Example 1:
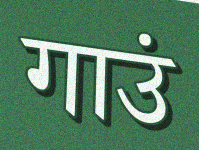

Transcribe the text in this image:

गाउं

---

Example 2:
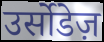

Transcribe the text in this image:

उर्सोडेज़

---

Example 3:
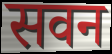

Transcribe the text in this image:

सवन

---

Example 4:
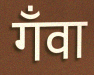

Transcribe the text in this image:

गँवा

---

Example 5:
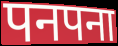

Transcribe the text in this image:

पनपना